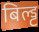
बिल्ड्ट